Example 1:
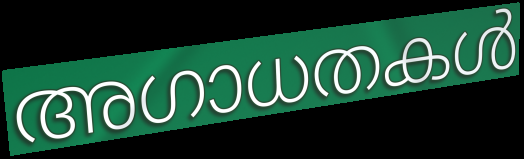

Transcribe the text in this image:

അഗാധതകൾ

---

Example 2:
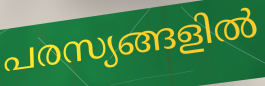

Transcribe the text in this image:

പരസ്യങ്ങളിൽ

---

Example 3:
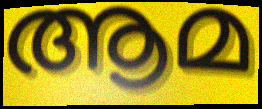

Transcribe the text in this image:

ആമ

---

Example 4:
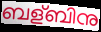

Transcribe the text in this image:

ബള്ബിനു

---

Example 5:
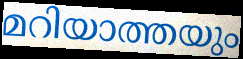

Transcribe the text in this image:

മറിയാത്തയും